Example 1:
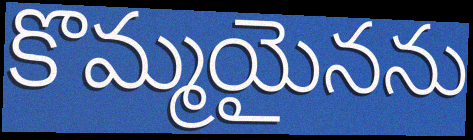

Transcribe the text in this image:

కొమ్మయైనను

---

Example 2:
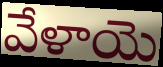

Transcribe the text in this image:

వేళాయె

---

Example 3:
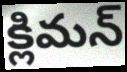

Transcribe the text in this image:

క్లిమన్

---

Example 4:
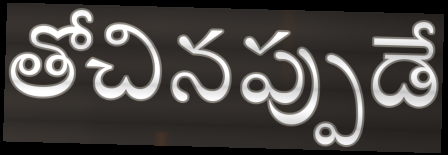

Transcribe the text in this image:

తోచినప్పుడే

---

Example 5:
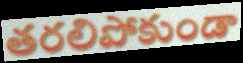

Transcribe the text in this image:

తరలిపోకుండా